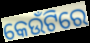
କେଉଁଟିରେ